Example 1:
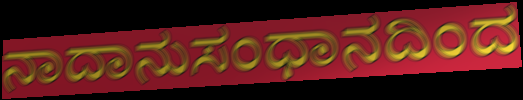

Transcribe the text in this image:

ನಾದಾನುಸಂಧಾನದಿಂದ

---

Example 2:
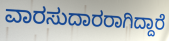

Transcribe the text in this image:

ವಾರಸುದಾರರಾಗಿದ್ದಾರೆ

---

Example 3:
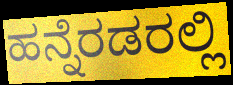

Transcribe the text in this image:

ಹನ್ನೆರಡರಲ್ಲಿ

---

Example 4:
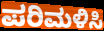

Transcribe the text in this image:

ಪರಿಮಳಿಸಿ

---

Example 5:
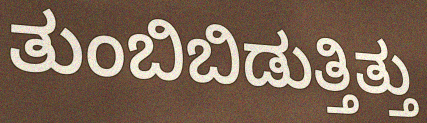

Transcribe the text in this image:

ತುಂಬಿಬಿಡುತ್ತಿತ್ತು